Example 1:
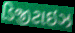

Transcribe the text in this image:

ડિજીટાઇઝ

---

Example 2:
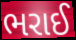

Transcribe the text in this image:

ભરાઈ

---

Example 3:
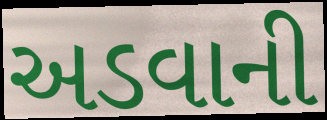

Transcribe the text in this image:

અડવાની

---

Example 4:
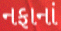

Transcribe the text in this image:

નફાનાં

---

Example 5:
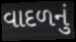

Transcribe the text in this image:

વાદળનું